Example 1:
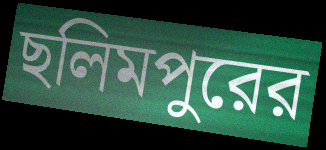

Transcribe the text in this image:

ছলিমপুরের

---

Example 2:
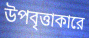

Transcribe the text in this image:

উপবৃত্তাকারে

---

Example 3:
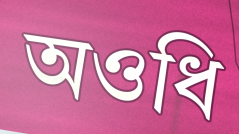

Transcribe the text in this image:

অওধি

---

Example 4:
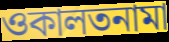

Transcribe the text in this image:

ওকালতনামা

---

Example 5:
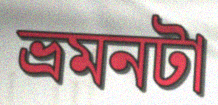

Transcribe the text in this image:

ভ্রমনটা